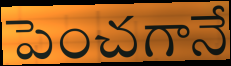
పెంచగానే